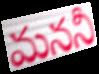
మననీ